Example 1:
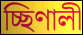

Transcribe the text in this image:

চ্ছিণালী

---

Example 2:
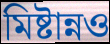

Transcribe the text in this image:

মিষ্টান্নও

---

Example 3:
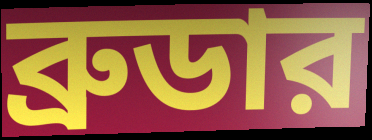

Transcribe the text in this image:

ব্রুডার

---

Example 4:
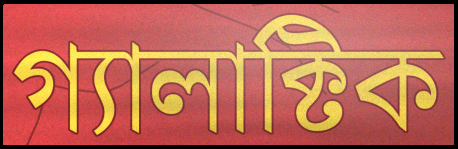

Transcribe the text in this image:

গ্যালাক্টিক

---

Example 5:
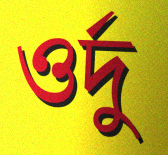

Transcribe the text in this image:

ওর্দু